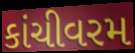
કાંચીવરમ